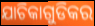
ଯାଚିକାଗୁଡିକର